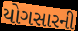
યોગસારની